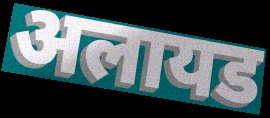
अलायड